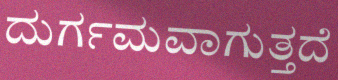
ದುರ್ಗಮವಾಗುತ್ತದೆ